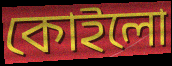
কোইলো